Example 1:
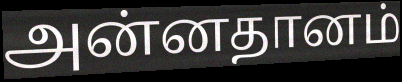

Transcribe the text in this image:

அன்னதானம்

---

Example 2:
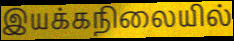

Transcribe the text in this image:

இயக்கநிலையில்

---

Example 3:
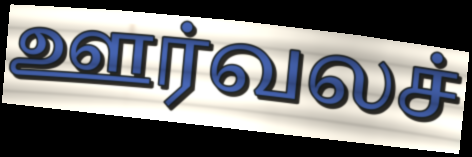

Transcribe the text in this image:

ஊர்வலச்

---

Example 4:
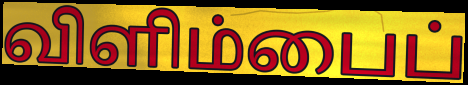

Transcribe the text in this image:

விளிம்பைப்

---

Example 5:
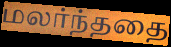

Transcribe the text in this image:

மலர்ந்ததை